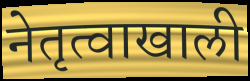
नेतृत्वाखाली